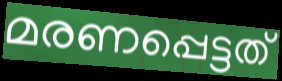
മരണപ്പെട്ടത്